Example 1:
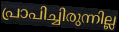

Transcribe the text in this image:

പ്രാപിച്ചിരുന്നില്ല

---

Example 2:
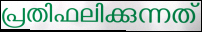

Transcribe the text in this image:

പ്രതിഫലിക്കുന്നത്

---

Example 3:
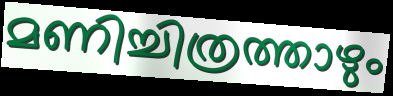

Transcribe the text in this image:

മണിച്ചിത്രത്താഴും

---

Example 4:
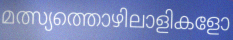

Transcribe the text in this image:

മത്സ്യത്തൊഴിലാളികളോ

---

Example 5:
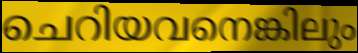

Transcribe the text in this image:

ചെറിയവനെങ്കിലും